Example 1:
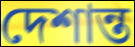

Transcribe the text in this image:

দেশান্ত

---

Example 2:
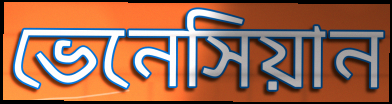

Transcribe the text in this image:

ভেনেসিয়ান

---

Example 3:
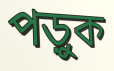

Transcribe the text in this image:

পড়ুক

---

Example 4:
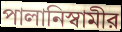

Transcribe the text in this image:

পালানিস্বামীর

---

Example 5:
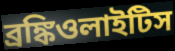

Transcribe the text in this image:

ব্রঙ্কিওলাইটিস